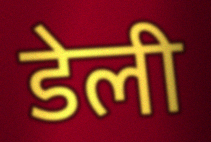
डेली